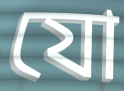
যো